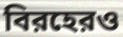
বিরহেরও